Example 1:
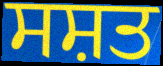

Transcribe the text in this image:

ਸਸ਼ਤ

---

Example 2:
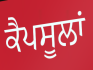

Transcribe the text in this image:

ਕੈਪਸੂਲਾਂ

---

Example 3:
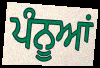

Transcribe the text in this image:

ਪੰਨੂਆਂ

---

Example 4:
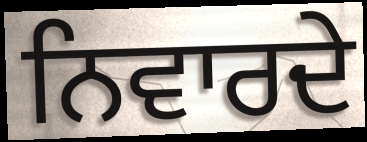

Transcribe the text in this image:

ਨਿਵਾਰਦੇ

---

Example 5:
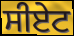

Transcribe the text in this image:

ਸੀਏਟ